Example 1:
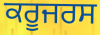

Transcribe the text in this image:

ਕਰੂਜਰਸ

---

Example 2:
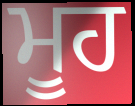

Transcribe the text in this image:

ਮੂਹ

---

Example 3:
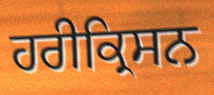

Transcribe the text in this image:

ਹਰੀਕ੍ਰਿਸਨ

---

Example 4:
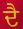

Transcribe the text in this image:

ਦੈ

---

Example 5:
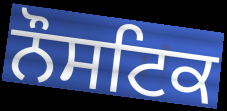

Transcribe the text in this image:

ਨੌਸਟਿਕ